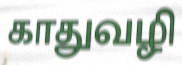
காதுவழி